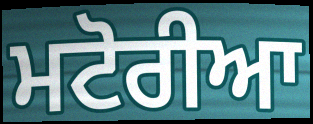
ਮਟੋਰੀਆ